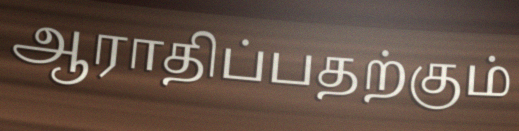
ஆராதிப்பதற்கும்